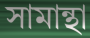
সামান্থা